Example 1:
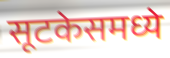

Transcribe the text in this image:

सूटकेसमध्ये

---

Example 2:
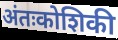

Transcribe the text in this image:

अंतःकोशिकी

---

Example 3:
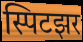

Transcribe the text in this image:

स्पिटझर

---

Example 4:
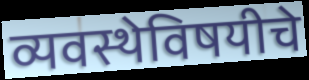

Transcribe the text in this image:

व्यवस्थेविषयीचे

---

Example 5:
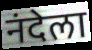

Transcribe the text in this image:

नंदेला